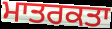
ਮਾਤਰਕਤਾ